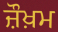
ਜ਼ੌਖ਼ਮ